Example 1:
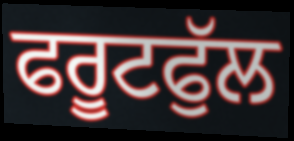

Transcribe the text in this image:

ਫਰੂਟਫੁੱਲ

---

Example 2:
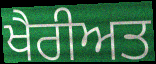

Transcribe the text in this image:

ਖੈਰੀਅਤ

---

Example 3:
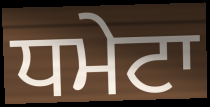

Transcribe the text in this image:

ਧਮੇਟਾ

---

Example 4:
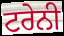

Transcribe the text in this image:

ਟਰੇਨੀ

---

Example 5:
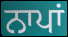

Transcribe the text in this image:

ਨਾਪਾਂ